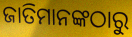
ଜାତିମାନଙ୍କଠାରୁ